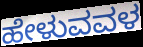
ಹೇಳುವವಳ